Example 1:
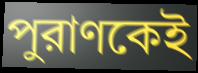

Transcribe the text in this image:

পুরাণকেই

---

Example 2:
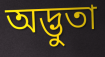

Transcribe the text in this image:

অদ্ভুতা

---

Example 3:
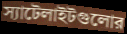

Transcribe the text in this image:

স্যাটেলাইটগুলোর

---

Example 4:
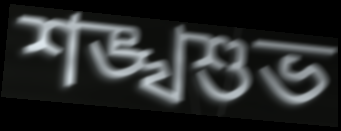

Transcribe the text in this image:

শঙ্খশুভ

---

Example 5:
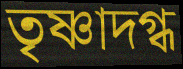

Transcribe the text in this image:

তৃষ্ণাদগ্ধ